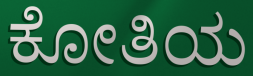
ಕೋತಿಯ